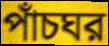
পাঁচঘর